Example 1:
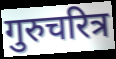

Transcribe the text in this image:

गुरुचरित्र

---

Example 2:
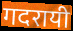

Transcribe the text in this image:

गदरायी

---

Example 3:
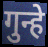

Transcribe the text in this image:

गुन्हे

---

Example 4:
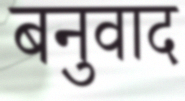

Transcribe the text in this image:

बनुवाद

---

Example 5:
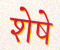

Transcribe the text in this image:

शेषे